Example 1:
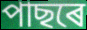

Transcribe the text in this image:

পাছৰে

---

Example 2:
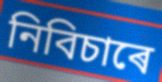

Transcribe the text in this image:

নিবিচাৰে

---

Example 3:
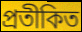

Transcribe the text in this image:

প্ৰতীকিত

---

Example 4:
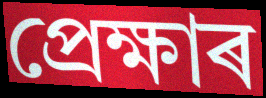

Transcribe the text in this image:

প্ৰেক্ষাৰ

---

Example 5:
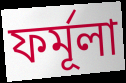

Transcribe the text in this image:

ফৰ্মূলা